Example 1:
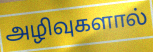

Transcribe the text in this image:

அழிவுகளால்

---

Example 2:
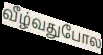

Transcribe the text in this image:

வீழ்வதுபோல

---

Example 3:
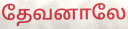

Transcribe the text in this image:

தேவனாலே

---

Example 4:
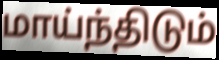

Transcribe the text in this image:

மாய்ந்திடும்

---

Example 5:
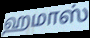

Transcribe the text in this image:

ஹமாஸ்